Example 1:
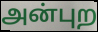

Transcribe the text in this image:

அன்புற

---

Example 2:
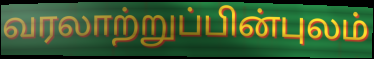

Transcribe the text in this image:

வரலாற்றுப்பின்புலம்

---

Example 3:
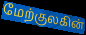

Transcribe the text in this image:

மேற்குலகின்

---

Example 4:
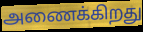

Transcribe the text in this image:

அணைக்கிறது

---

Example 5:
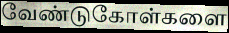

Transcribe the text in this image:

வேண்டுகோள்களை